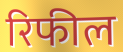
रिफील